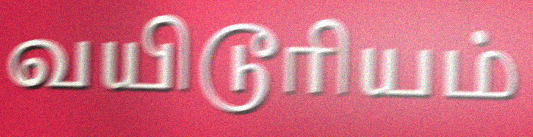
வயிடூரியம்